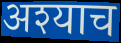
अश्याच